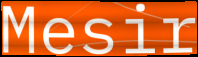
Mesir